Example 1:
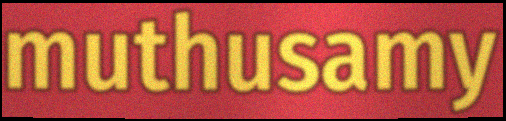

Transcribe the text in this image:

muthusamy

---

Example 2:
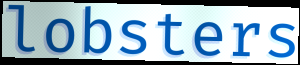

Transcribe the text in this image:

lobsters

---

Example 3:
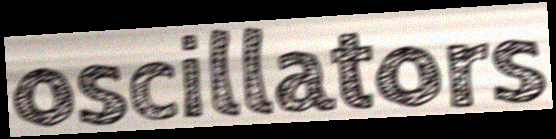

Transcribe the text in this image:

oscillators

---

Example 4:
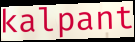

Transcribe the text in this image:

kalpant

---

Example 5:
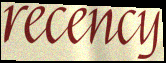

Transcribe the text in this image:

recency